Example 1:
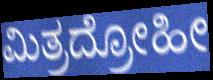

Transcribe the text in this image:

ಮಿತ್ರದ್ರೋಹೀ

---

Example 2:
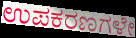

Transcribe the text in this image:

ಉಪಕರಣಗಳೇ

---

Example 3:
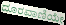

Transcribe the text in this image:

ದೂರವಾಣಿಯೇ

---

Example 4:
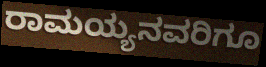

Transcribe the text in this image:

ರಾಮಯ್ಯನವರಿಗೂ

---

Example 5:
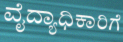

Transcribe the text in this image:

ವೈದ್ಯಾಧಿಕಾರಿಗೆ